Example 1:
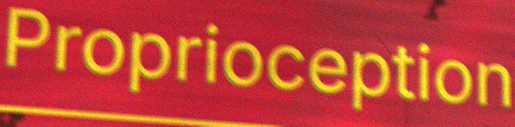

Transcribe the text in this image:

Proprioception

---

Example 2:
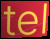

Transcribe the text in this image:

tel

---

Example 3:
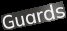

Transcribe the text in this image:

Guards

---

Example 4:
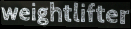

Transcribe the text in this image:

weightlifter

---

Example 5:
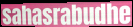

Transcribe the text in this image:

sahasrabudhe